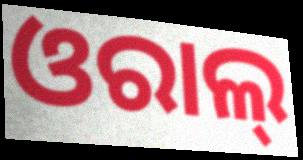
ଓରାଲ୍